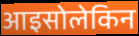
आइसोलेकिन